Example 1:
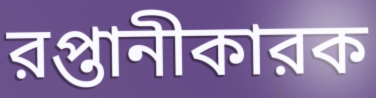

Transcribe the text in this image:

রপ্তানীকারক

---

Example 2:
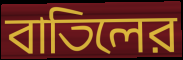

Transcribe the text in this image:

বাতিলের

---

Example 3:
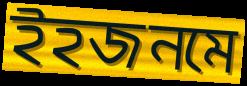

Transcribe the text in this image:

ইহজনমে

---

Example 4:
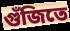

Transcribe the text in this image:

গুঁজিতে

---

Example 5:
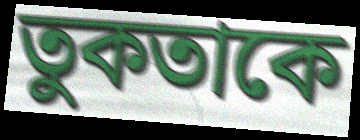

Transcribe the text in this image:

তুকতাকে